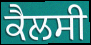
ਕੈਲਸੀ